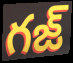
గజ్